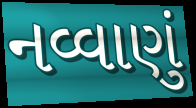
નવ્વાણું